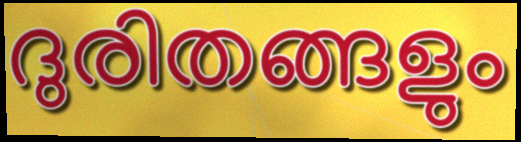
ദുരിതങ്ങളും